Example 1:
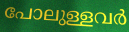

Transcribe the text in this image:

പോലുള്ളവർ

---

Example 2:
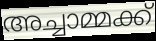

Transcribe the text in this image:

അച്ചാമ്മക്ക്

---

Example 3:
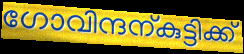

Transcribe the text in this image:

ഗോവിന്ദന്കുട്ടിക്ക്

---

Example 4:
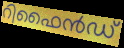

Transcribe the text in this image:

റിഫൈൻഡ്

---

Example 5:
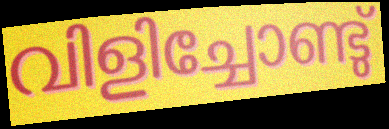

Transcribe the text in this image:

വിളിച്ചോണ്ടു്